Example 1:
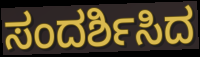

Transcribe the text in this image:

ಸಂದರ್ಶಿಸಿದ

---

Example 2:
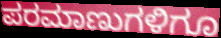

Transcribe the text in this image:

ಪರಮಾಣುಗಳಿಗೂ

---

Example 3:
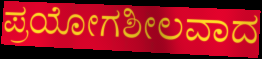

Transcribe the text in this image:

ಪ್ರಯೋಗಶೀಲವಾದ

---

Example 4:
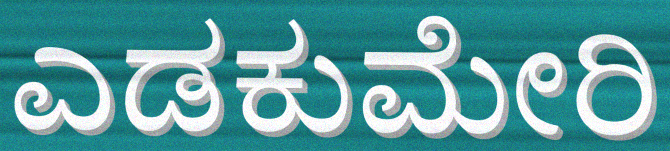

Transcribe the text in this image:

ಎಡಕುಮೇರಿ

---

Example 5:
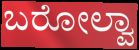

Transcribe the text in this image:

ಬರೋಲ್ವಾ